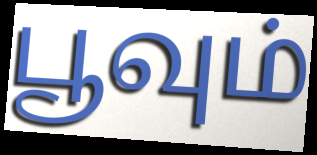
பூவும்